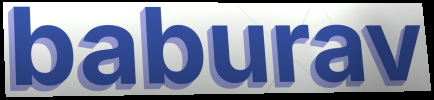
baburav